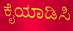
ಕೈಯಾಡಿಸಿ